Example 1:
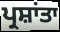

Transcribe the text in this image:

ਪ੍ਰਸ਼ਾਂਤਾ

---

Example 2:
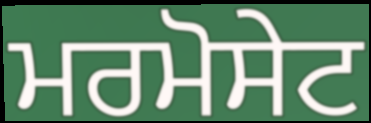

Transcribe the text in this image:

ਮਰਮੋਸੇਟ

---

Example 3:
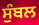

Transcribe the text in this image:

ਸੁੰਬਲ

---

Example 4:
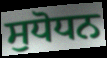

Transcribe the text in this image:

ਸੁਧੋਧਨ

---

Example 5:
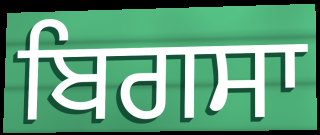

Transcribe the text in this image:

ਬਿਗਸਾ